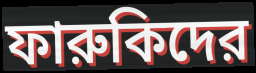
ফারুকিদের